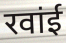
रवांई